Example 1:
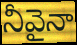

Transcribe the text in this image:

నీవైనా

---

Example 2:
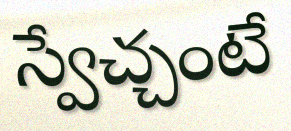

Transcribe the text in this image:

స్వేచ్చంటే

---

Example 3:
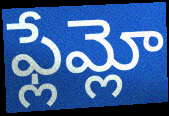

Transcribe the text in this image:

ఫ్లేమ్లో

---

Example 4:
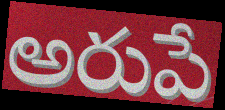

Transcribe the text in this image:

అరుపే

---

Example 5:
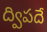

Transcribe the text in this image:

ద్విపదే